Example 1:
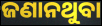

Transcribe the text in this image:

ଜଣାନଥୁବା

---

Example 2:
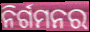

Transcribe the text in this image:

ନିର୍ଗମନର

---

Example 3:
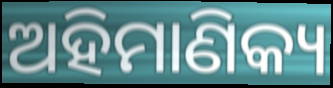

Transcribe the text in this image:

ଅହିମାଣିକ୍ୟ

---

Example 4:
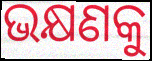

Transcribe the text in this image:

ଭକ୍ଷଣକୁ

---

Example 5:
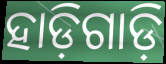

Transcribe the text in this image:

ହାଡ଼ିଗାଡ଼ି